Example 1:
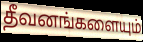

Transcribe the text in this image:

தீவனங்களையும்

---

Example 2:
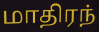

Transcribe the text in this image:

மாதிரந்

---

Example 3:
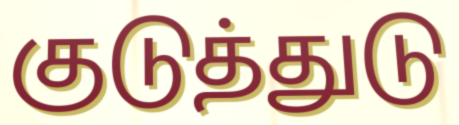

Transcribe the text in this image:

குடுத்துடு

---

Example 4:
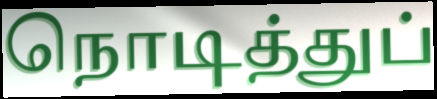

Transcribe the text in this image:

நொடித்துப்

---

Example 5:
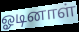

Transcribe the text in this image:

ஓடினாள்